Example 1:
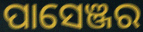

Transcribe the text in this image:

ପାସେଞ୍ଜର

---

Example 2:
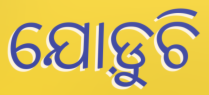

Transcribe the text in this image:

ଯୋଡ଼ୁଚି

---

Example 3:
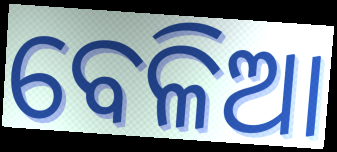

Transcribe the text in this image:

ବେଳିଆ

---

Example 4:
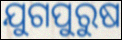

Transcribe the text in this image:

ଯୁଗପୁରୁଷ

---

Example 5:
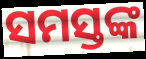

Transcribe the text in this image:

ସମସ୍ତଙ୍କ